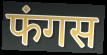
फंगस